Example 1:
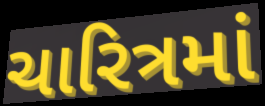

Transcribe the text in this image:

ચારિત્રમાં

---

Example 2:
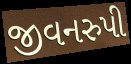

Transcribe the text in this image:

જીવનરુપી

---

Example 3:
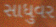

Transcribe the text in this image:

સાધુવર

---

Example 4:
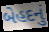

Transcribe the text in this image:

બેહદનું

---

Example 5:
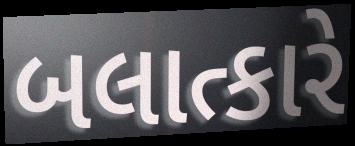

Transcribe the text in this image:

બલાત્કારે